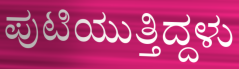
ಪುಟಿಯುತ್ತಿದ್ದಳು